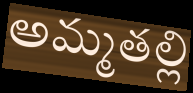
అమ్మతల్లి